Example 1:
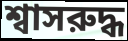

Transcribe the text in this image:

শ্বাসরুদ্ধ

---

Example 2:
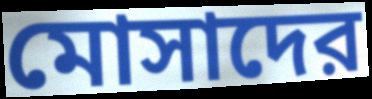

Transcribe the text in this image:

মোসাদের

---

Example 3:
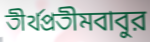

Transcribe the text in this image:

তীর্থপ্রতীমবাবুর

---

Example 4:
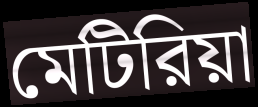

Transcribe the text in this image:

মেটিরিয়া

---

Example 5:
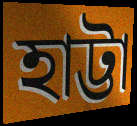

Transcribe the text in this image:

হাট্টা